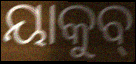
ୟାକୁବ୍